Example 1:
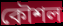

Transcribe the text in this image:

কৌশল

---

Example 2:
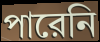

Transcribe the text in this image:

পারেনি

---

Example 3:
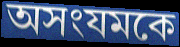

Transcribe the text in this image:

অসংযমকে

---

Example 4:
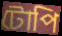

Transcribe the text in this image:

টোপি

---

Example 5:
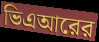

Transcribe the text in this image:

ভিএআরের